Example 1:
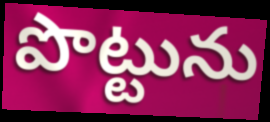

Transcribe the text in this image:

పొట్టును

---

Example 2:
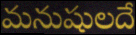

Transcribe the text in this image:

మనుషులదే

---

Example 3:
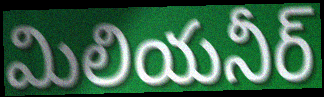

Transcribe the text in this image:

మిలియనీర్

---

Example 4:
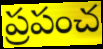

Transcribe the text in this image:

ప్రపంచ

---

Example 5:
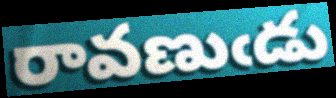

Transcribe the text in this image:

రావణుఁడు